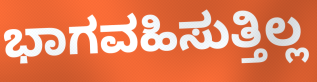
ಭಾಗವಹಿಸುತ್ತಿಲ್ಲ